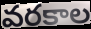
వరకాల